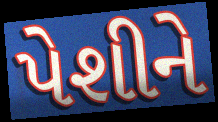
પેશીને